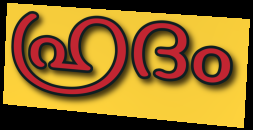
ഹ്രദം